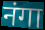
नंगा